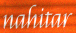
nahitar